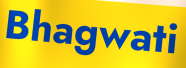
Bhagwati